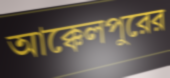
আক্কেলপুরের